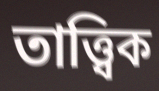
তাত্ত্বিক